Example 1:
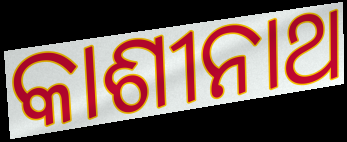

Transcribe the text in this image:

କାଶୀନାଥ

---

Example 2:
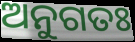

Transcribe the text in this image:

ଅନୁଗତଃ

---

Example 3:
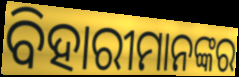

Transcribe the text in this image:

ବିହାରୀମାନଙ୍କର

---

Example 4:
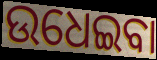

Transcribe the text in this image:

ଉଧେଇବା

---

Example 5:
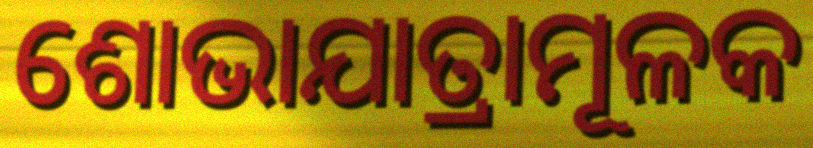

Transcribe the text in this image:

ଶୋଭାଯାତ୍ରାମୂଳକ